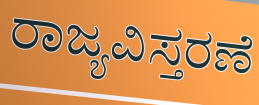
ರಾಜ್ಯವಿಸ್ತರಣೆ